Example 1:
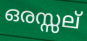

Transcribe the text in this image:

ഒരസ്സല്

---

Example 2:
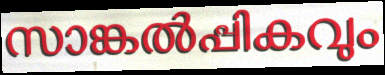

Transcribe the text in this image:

സാങ്കൽപ്പികവും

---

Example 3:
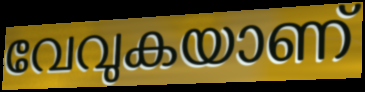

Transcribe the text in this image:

വേവുകയാണ്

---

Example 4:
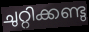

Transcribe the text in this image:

ചുറ്റിക്കണ്ടു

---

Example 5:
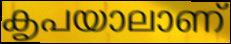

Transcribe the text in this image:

കൃപയാലാണ്